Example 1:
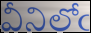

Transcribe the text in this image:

వీనిలోఁ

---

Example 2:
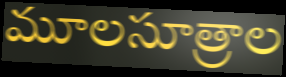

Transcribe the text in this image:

మూలసూత్రాల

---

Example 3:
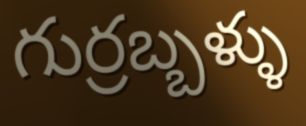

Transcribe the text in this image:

గుర్రబ్బళ్ళు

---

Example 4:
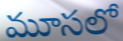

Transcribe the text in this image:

మూసలో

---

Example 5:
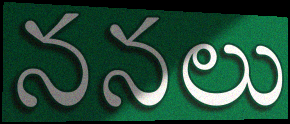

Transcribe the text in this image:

ననలు